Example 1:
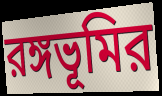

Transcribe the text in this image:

রঙ্গভূমির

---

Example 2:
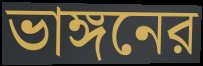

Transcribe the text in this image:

ভাঙ্গনের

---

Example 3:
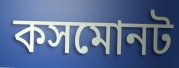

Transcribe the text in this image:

কসমোনট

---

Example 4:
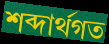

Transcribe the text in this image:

শব্দার্থগত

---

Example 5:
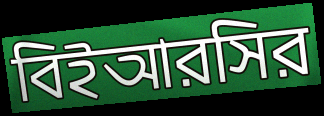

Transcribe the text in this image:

বিইআরসির